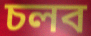
চলব